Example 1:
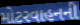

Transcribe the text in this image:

મોટરવાહનની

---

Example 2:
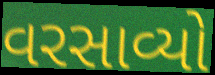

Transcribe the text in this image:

વરસાવ્યો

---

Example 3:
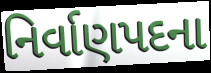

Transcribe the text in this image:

નિર્વાણપદના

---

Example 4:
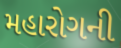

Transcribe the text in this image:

મહારોગની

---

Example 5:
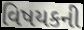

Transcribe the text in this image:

વિષયકની